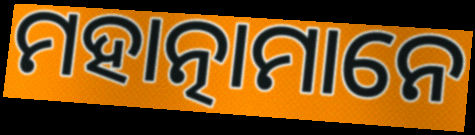
ମହାତ୍ନାମାନେ